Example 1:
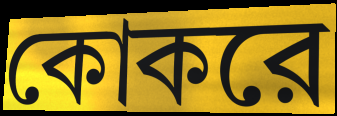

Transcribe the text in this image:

কোকরে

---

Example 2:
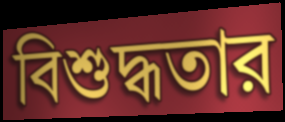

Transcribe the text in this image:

বিশুদ্ধতার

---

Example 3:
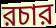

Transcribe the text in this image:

রচার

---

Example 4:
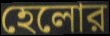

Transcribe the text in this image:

হেলোর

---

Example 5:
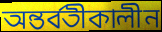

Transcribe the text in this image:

অন্তর্বতীকালীন